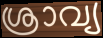
ശ്രാവ്യ